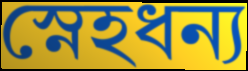
স্নেহধন্য